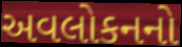
અવલોકનનો